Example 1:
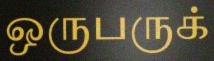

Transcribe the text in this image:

ஒருபருக்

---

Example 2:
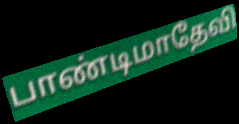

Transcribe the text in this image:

பாண்டிமாதேவி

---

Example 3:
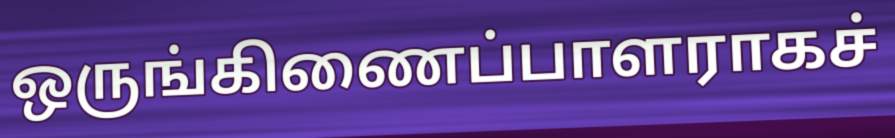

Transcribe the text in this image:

ஒருங்கிணைப்பாளராகச்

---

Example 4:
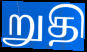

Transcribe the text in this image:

றுதி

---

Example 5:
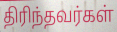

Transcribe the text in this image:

திரிந்தவர்கள்